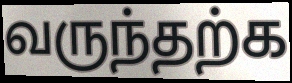
வருந்தற்க